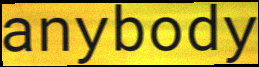
anybody